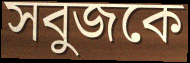
সবুজকে